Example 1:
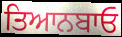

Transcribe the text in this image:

ਤਿਆਨਬਾਓ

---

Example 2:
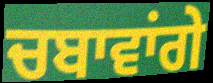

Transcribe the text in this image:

ਚਬਾਵਾਂਗੇ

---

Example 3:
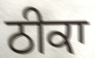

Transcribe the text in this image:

ਠੀਕਾ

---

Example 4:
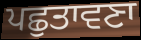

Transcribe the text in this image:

ਪਛੁਤਾਵਣਾ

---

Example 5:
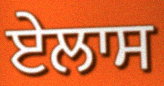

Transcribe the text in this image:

ਏਲਾਸ